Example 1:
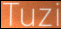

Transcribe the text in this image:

Tuzi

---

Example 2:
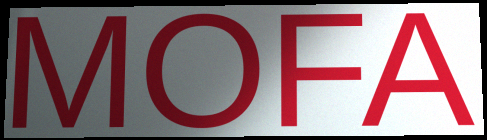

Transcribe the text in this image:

MOFA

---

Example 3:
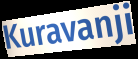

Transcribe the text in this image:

Kuravanji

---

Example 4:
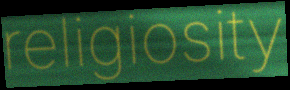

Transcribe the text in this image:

religiosity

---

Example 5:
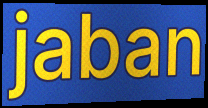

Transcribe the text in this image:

jaban